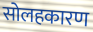
सोलहकारण